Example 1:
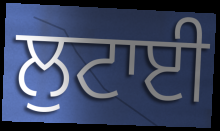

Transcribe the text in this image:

ਲੁਟਾਈ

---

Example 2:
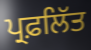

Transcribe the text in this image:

ਪ੍ਰਫ਼ਲਿੱਤ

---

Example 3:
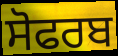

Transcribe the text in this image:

ਸੋਫਰਬ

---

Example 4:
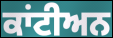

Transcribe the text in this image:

ਕਾਂਟੀਅਨ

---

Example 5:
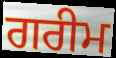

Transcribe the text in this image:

ਗਰੀਮ